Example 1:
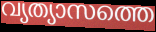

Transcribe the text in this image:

വ്യത്യാസത്തെ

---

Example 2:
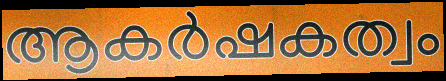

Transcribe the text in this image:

ആകർഷകത്വം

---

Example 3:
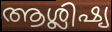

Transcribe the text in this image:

ആശ്ലിഷ്യ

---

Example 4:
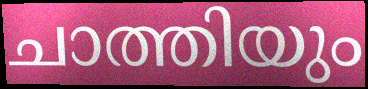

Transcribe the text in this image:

ചാത്തിയും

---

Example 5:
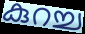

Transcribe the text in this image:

കുറച്ച